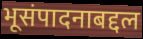
भूसंपादनाबद्दल